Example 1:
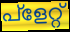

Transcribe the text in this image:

പ്ളേറ്റ്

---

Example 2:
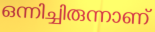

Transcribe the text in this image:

ഒന്നിച്ചിരുന്നാണ്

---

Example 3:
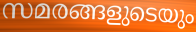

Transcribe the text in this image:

സമരങ്ങളുടെയും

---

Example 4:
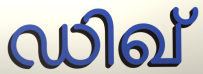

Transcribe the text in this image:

ഡിഖ്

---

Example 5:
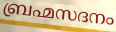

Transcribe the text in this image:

ബ്രഹ്മസദനം